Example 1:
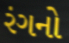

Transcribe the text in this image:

રંગનો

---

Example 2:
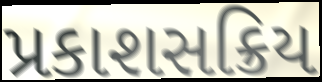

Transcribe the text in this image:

પ્રકાશસક્રિય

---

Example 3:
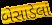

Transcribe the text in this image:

બેસાડેલાં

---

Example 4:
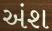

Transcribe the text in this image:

અંશ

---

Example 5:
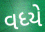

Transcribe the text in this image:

વધ્યે